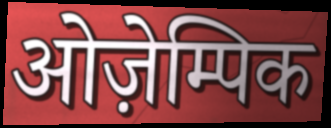
ओज़ेम्पिक